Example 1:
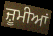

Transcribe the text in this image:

ਜ਼ੂਮੀਆਂ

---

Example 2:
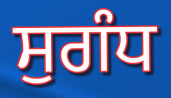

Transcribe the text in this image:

ਸੁਗੰਧ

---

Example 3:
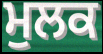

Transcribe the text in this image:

ਮੁਲਕ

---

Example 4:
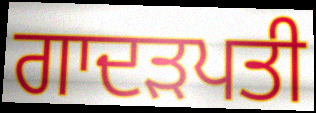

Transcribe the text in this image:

ਗਾਦੜਪਤੀ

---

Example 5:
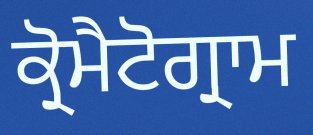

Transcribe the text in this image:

ਕ੍ਰੋਮੈਟੋਗ੍ਰਾਮ